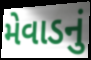
મેવાડનું